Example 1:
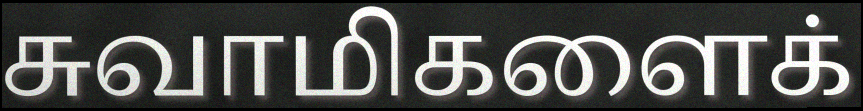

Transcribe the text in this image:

சுவாமிகளைக்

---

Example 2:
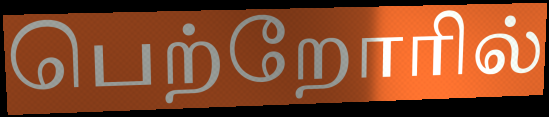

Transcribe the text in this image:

பெற்றோரில்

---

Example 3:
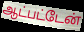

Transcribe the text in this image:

ஆட்பட்டேன்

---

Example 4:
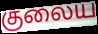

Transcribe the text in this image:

குலைய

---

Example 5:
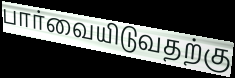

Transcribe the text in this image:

பார்வையிடுவதற்கு